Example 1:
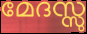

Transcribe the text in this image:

മേദസ്സു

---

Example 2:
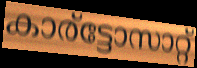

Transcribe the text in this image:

കാര്ട്ടോസാറ്റ്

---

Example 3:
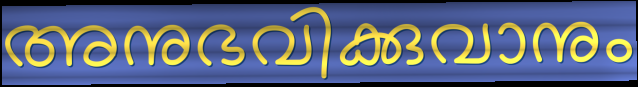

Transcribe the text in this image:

അനുഭവിക്കുവാനും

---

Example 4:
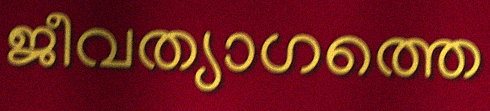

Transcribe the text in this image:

ജീവത്യാഗത്തെ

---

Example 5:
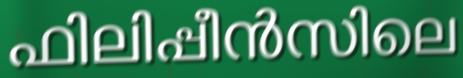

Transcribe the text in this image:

ഫിലിപ്പീൻസിലെ